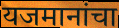
यजमानांचा